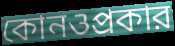
কোনওপ্রকার